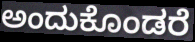
ಅಂದುಕೊಂಡರೆ